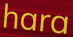
hara